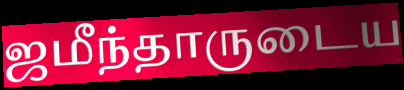
ஜமீந்தாருடைய